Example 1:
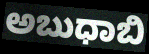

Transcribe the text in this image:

ಅಬುಧಾಬಿ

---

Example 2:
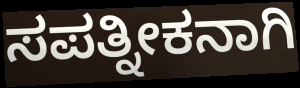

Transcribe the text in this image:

ಸಪತ್ನೀಕನಾಗಿ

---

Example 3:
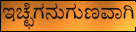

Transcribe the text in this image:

ಇಚ್ಛೆಗನುಗುಣವಾಗಿ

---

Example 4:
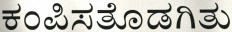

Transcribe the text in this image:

ಕಂಪಿಸತೊಡಗಿತು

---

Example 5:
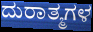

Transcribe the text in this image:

ದುರಾತ್ಮಗಳ